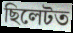
ছিলেটত